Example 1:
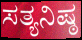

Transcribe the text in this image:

ಸತ್ಯನಿಷ್ಠ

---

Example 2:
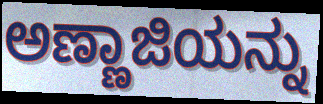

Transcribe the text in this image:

ಅಣ್ಣಾಜಿಯನ್ನು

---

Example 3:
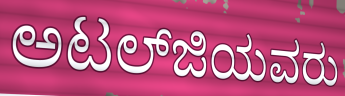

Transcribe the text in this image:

ಅಟಲ್‍ಜಿಯವರು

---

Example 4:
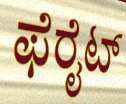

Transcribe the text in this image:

ಫೆರೈಟ್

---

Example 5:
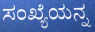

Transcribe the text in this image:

ಸಂಖ್ಯೆಯನ್ನ